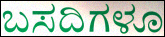
ಬಸದಿಗಳೂ